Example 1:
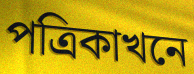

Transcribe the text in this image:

পত্ৰিকাখনে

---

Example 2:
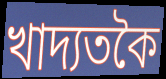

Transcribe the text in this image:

খাদ্যতকৈ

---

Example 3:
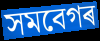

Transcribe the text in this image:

সমবেগৰ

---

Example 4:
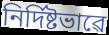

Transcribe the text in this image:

নিৰ্দিষ্টভাৱে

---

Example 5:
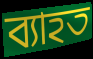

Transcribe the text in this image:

ব্যাহত